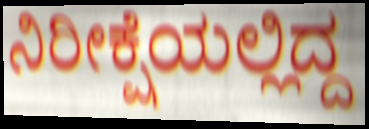
ನಿರೀಕ್ಷೆಯಲ್ಲಿದ್ದ